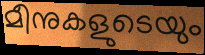
മീനുകളുടെയും